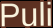
Puli